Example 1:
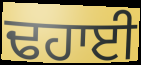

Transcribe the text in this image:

ਢਹਾਈ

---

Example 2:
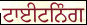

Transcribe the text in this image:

ਟਾਈਟਨਿੰਗ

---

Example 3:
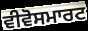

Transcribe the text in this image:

ਵੀਵੋਸਮਾਰਟ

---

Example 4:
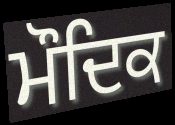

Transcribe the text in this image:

ਮੌਦਿਕ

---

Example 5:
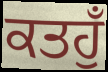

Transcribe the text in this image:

ਕਤਹੁਁ